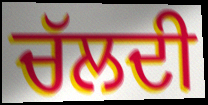
ਚੱਲਦੀ